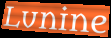
Lunine